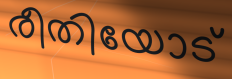
രീതിയോട്